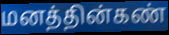
மனத்தின்கண்